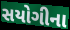
સયોગીના